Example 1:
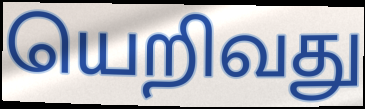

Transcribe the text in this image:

யெறிவது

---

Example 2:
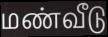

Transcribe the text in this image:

மண்வீடு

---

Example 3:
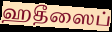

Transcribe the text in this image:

ஹதீஸைப்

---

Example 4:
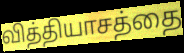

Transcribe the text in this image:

வித்தியாசத்தை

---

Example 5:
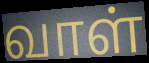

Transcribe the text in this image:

வாள்